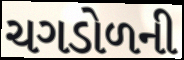
ચગડોળની